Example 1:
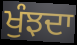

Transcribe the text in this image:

ਖੁੰਝਦਾ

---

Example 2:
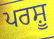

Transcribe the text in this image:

ਪਰਸ਼ੂ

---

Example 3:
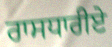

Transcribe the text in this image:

ਰਾਸਧਾਰੀਏ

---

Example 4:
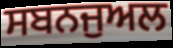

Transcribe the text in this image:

ਸਬਨਜੁਅਲ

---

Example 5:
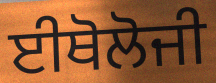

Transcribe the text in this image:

ਈਥੋਲੋਜੀ